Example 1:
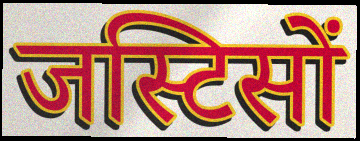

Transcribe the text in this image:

जस्टिसों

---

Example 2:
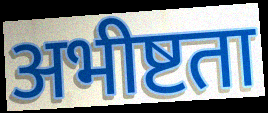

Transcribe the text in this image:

अभीष्टता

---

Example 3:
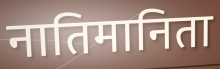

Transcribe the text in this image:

नातिमानिता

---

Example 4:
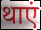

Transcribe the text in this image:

थाएं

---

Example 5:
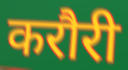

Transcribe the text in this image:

करौरी